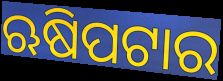
ଋଷିପଟାର